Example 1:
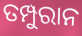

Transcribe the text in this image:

ତମ୍ପୁରାନ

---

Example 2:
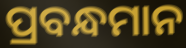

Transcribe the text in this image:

ପ୍ରବନ୍ଧମାନ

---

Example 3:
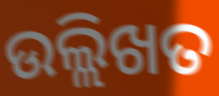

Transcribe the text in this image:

ଉଲ୍ଲିଖତ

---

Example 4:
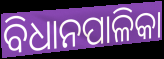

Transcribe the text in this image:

ବିଧାନପାଳିକା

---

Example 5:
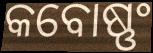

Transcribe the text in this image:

କବୋଷ୍ଣଂ